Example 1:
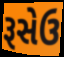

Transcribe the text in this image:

રૂસેઉ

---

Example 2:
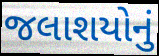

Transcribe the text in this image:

જલાશયોનું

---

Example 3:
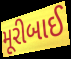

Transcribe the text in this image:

મૂરીબાઈ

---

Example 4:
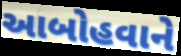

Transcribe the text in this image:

આબોહવાને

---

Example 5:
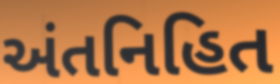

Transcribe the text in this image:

અંતનિહિત